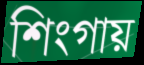
শিংগায়